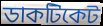
ডাকটিকেট